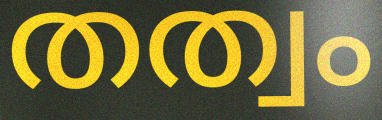
തത്വം